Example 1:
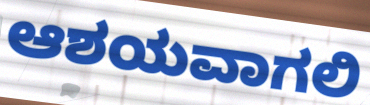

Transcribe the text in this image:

ಆಶಯವಾಗಲಿ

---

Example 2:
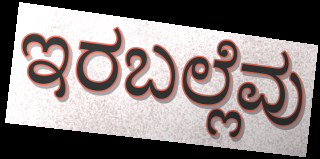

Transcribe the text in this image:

ಇರಬಲ್ಲೆವು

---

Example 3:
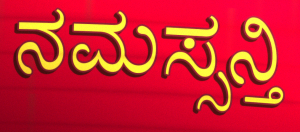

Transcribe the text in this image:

ನಮಸ್ಸನ್ತಿ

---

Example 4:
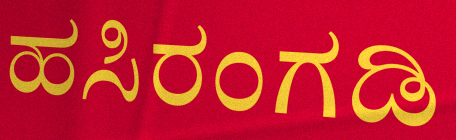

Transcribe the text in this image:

ಹಸಿರಂಗಡಿ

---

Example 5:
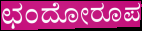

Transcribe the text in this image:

ಛಂದೋರೂಪ